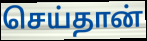
செய்தான்